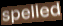
spelled